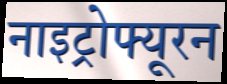
नाइट्रोफ्यूरन